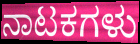
ನಾಟಕಗಳು